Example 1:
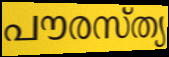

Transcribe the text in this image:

പൗരസ്ത്യ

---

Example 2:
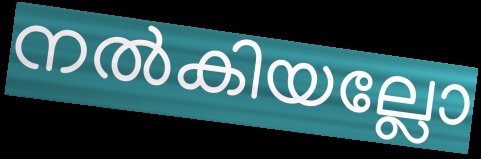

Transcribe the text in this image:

നൽകിയല്ലോ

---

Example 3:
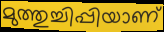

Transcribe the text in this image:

മുത്തുച്ചിപ്പിയാണ്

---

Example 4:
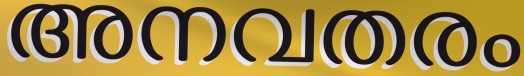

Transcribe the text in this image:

അനവതരം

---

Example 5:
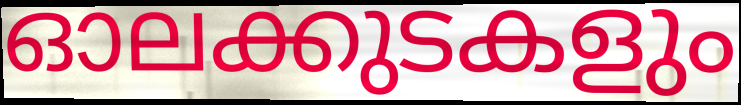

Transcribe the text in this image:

ഓലക്കുടകളും